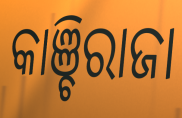
କାଞ୍ଚିରାଜା